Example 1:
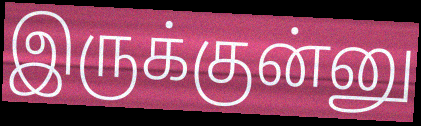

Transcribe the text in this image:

இருக்குன்னு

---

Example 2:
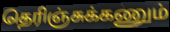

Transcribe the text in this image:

தெரிஞ்சுக்கணும்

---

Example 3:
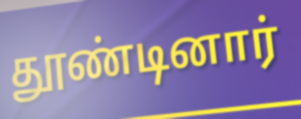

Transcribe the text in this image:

தூண்டினார்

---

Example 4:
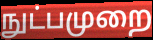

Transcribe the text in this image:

நுட்பமுறை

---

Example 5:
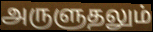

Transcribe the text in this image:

அருளுதலும்